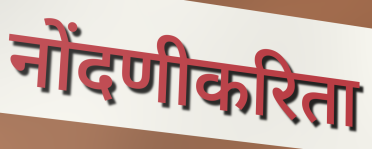
नोंदणीकरिता